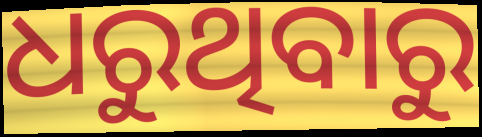
ଧରୁଥିବାରୁ